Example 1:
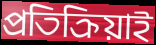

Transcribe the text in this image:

প্রতিক্রিয়াই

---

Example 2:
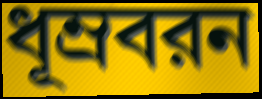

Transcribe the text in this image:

ধূম্রবরন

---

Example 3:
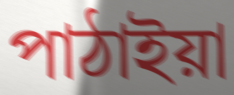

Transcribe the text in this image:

পাঠাইয়া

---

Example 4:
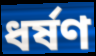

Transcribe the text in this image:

ধর্ষণ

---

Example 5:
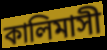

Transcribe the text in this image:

কালিমাসী